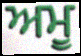
ਅਮੂ